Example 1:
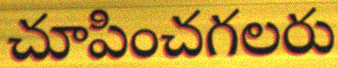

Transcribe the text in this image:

చూపించగలరు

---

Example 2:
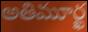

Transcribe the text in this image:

అతిమూర్ఖ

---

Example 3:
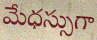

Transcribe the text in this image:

మేధస్సుగా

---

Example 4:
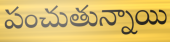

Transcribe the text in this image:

పంచుతున్నాయి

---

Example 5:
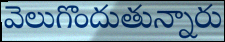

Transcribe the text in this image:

వెలుగొందుతున్నారు